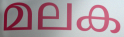
മലക